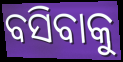
ବସିବାକୁ